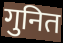
गुनित